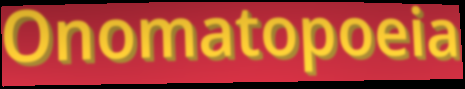
Onomatopoeia